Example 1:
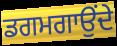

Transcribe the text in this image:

ਡਗਮਗਾਉਂਦੇ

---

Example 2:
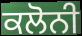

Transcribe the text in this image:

ਕਲੋਨੀ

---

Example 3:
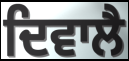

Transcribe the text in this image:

ਦਿਵਾਲੈ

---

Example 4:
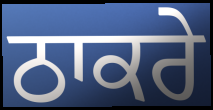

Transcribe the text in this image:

ਠਾਕਰੇ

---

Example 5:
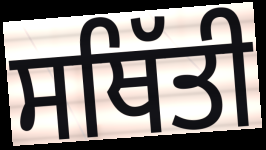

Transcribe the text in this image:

ਸਥਿੱਤੀ